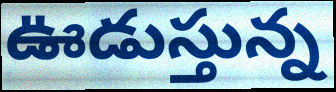
ఊడుస్తున్న